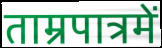
ताम्रपात्रमें